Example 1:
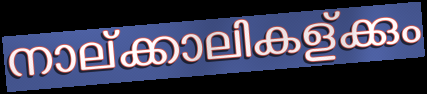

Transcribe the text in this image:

നാല്ക്കാലികള്ക്കും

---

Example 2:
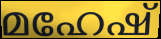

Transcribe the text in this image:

മഹേഷ്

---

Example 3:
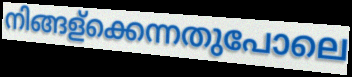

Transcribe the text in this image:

നിങ്ങള്ക്കെന്നതുപോലെ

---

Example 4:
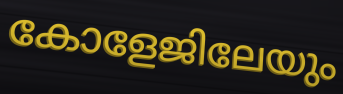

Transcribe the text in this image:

കോളേജിലേയും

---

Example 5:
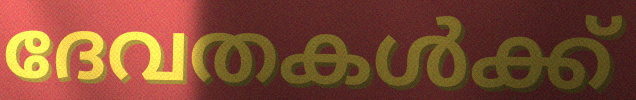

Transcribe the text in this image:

ദേവതകൾക്ക്